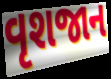
વૃશજાન